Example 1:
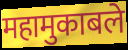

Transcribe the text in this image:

महामुकाबले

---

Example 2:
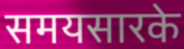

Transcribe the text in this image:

समयसारके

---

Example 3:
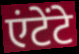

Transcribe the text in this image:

एंटेंटे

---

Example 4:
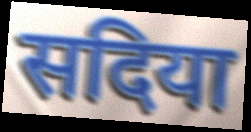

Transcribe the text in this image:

सदिया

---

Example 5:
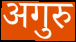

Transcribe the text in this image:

अगुरु